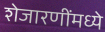
शेजारणींमध्ये